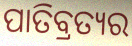
ପାତିବ୍ରତ୍ୟର